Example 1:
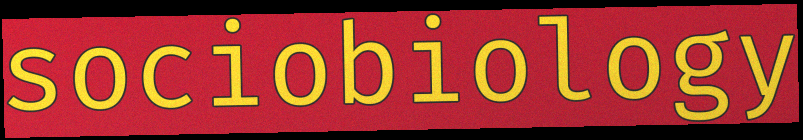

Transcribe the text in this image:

sociobiology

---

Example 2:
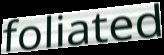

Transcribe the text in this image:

foliated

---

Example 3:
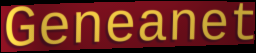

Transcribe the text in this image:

Geneanet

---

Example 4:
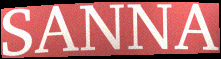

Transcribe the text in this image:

SANNA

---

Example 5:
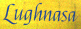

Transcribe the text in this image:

Lughnasa